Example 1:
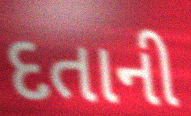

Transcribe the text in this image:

દતાની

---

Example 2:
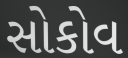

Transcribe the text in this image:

સોકોવ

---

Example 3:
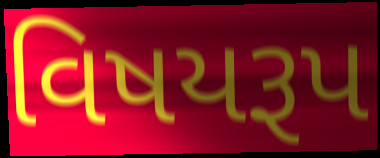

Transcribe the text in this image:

વિષયરૂપ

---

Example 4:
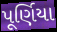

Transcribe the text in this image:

પૂર્ણિયા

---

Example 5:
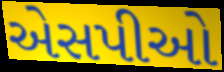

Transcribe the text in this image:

એસપીઓ